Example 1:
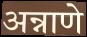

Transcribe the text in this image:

अन्नाणे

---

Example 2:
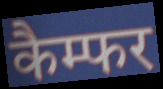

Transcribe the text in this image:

कैम्फर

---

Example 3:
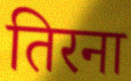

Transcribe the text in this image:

तिरना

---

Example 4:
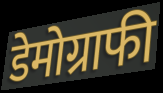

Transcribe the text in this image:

डेमोग्राफी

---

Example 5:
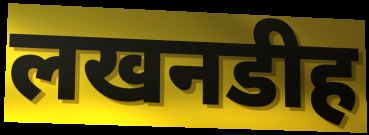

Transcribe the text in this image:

लखनडीह